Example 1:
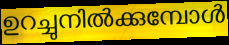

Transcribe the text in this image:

ഉറച്ചുനിൽക്കുമ്പോൾ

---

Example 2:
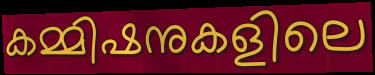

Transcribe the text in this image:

കമ്മിഷനുകളിലെ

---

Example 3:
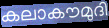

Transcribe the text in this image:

കലാകൗമുദി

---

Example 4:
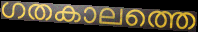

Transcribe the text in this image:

ഗതകാലത്തെ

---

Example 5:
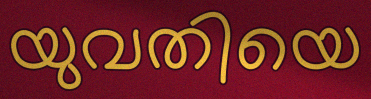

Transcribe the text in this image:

യുവതിയെ